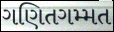
ગણિતગમ્મત